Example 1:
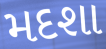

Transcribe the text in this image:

મદશા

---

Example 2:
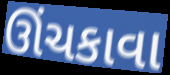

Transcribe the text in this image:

ઊંચકાવા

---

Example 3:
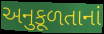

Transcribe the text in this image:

અનુકૂળતાનાં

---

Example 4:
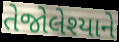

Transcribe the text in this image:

તેજોલેશ્યાને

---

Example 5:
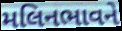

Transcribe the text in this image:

મલિનભાવને